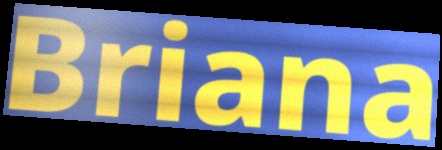
Briana